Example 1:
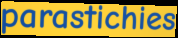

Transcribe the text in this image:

parastichies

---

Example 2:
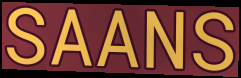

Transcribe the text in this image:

SAANS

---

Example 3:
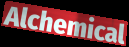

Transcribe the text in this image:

Alchemical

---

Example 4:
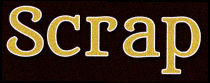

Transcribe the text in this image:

Scrap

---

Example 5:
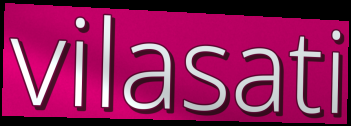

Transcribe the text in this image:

vilasati